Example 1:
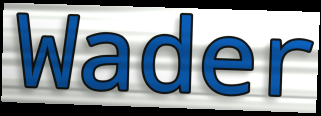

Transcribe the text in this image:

Wader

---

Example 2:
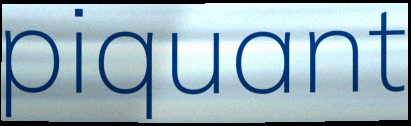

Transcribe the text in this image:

piquant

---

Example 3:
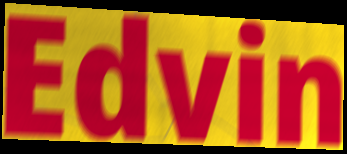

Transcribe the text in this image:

Edvin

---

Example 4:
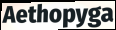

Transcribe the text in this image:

Aethopyga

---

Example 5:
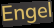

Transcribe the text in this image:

Engel